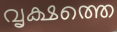
വൃക്ഷത്തെ